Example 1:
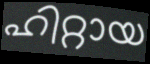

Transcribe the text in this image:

ഹിറ്റായ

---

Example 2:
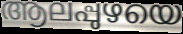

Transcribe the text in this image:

ആലപ്പുഴയെ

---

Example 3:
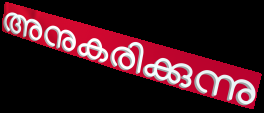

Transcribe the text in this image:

അനുകരിക്കുന്നു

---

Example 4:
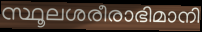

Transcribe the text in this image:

സ്ഥൂലശരീരാഭിമാനി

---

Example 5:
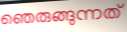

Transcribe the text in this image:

ഞെരുങ്ങുന്നത്